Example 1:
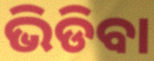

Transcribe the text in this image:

ଭିଡିବା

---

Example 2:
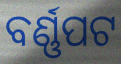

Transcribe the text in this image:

ବର୍ଣ୍ଣପଟ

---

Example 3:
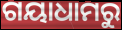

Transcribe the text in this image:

ଗୟାଧାମରୁ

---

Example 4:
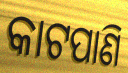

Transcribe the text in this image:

କାଟପାଣି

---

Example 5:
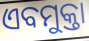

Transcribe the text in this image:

ଏବମୁକ୍ତା